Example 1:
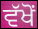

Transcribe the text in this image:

ਵੱਖੋਂ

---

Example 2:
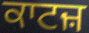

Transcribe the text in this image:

ਕਾਟਜ਼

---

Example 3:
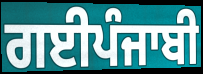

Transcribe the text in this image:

ਗਈਪੰਜਾਬੀ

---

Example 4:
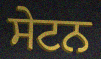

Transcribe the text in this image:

ਸੇਟਨ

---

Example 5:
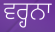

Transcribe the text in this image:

ਵਰ੍ਹਨਾ